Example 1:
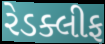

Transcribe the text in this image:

રેડક્લીફ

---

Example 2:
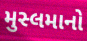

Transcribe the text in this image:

મુસ્લમાનો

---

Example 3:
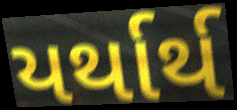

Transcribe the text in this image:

યર્થાર્થ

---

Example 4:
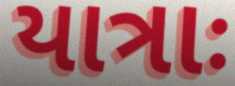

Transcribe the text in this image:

યાત્રાઃ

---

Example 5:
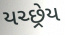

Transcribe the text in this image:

યચ્છ્રેય